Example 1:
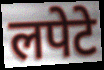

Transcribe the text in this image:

लपेटे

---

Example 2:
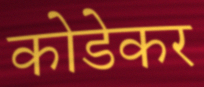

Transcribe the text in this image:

कोडेकर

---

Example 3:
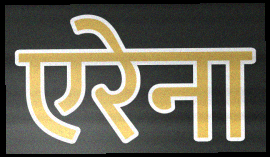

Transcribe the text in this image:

एरेना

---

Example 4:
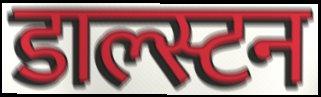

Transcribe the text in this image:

डाल्स्टन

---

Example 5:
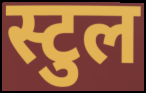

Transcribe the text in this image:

स्टुल